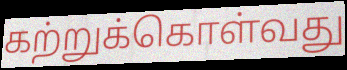
கற்றுக்கொள்வது